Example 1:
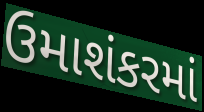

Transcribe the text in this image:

ઉમાશંકરમાં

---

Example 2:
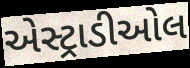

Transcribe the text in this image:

એસ્ટ્રાડીઓલ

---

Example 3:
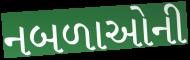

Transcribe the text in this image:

નબળાઓની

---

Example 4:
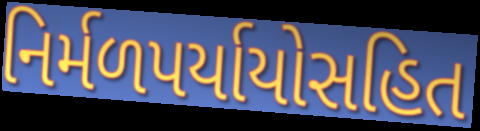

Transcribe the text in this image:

નિર્મળપર્યાયોસહિત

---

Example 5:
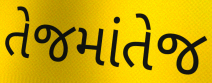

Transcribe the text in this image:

તેજમાંતેજ